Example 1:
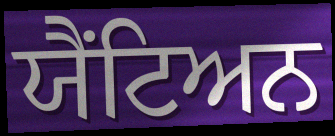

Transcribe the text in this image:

ਯੈਂਟਿਅਨ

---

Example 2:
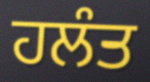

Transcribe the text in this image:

ਹਲੰਤ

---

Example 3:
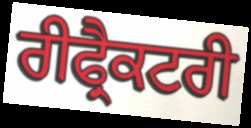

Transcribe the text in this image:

ਰੀਫ੍ਰੈਕਟਰੀ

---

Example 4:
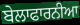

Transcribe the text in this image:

ਬੇਲਾਫਾਰਨੀਆ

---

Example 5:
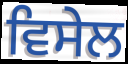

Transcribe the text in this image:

ਵਿਸੇਲ